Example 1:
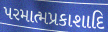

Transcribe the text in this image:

પરમાત્મપ્રકાશાદિ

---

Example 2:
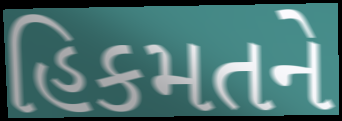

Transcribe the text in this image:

હિકમતને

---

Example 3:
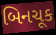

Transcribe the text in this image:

બિનચૂક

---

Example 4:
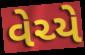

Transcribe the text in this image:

વેચ્યે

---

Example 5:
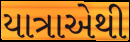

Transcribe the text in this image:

યાત્રાએથી